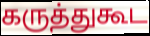
கருத்துகூட